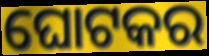
ଘୋଟକର